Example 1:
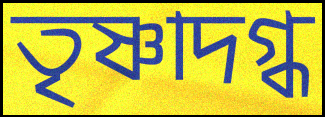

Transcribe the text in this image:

তৃষ্ণাদগ্ধ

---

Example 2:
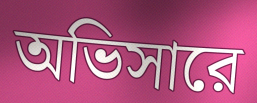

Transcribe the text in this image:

অভিসারে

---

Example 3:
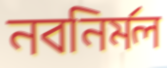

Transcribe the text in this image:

নবনির্মল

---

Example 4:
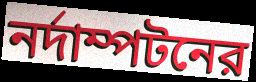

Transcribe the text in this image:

নর্দাম্পটনের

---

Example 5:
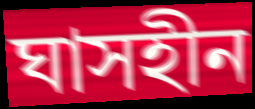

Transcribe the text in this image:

ঘাসহীন